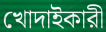
খোদাইকারী